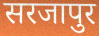
सरजापुर